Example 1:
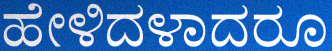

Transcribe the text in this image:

ಹೇಳಿದಳಾದರೂ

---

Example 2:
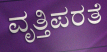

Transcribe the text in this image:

ವೃತ್ತಿಪರತೆ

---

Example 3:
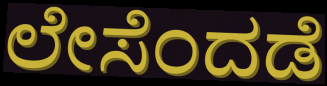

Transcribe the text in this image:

ಲೇಸೆಂದಡೆ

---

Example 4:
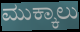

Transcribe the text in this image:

ಮುಕ್ಕಾಲು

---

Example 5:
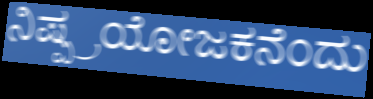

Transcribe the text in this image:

ನಿಷ್ಪ್ರಯೋಜಕನೆಂದು